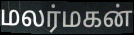
மலர்மகன்